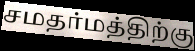
சமதர்மத்திற்கு